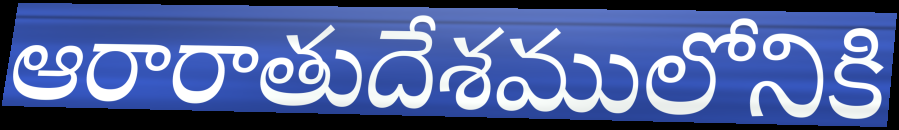
ఆరారాతుదేశములోనికి